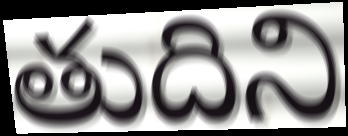
తుదిని